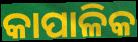
କାପାଳିକ